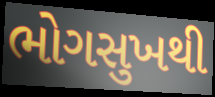
ભોગસુખથી